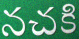
నచకి